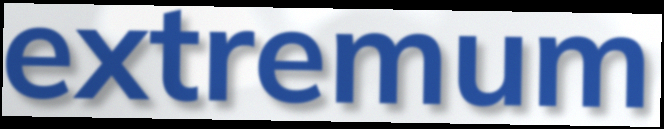
extremum